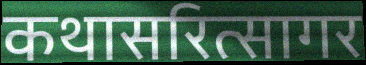
कथासरित्सागर